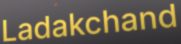
Ladakchand